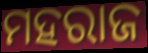
ମହରାଜ